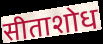
सीताशोध